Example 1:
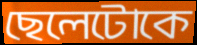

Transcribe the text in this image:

ছেলেটোকে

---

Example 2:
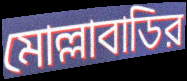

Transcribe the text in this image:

মোল্লাবাডির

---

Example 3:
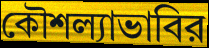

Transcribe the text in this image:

কৌশল্যাভাবির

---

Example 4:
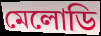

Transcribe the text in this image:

মেলোডি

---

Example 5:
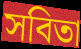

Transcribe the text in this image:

সবিতা